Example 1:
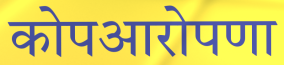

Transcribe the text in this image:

कोपआरोपणा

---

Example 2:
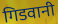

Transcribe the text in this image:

गिडवानी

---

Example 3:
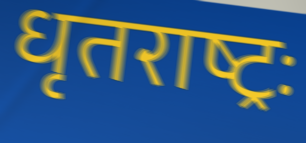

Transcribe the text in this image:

धृतराष्ट्रः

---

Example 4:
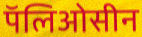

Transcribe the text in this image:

पॅलिओसीन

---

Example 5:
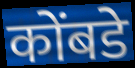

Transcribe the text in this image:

कोंबडे